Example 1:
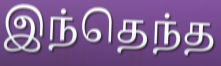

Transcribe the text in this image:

இந்தெந்த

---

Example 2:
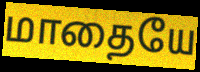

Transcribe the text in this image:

மாதையே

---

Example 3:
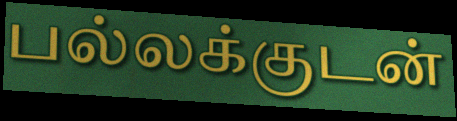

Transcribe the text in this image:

பல்லக்குடன்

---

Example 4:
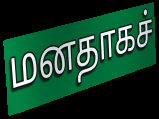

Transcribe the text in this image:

மனதாகச்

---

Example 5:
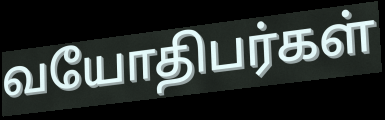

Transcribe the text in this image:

வயோதிபர்கள்